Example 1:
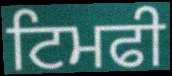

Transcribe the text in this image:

ਟਿਮਫੀ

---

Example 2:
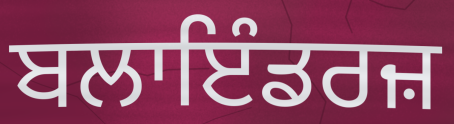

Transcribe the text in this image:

ਬਲਾਇੰਡਰਜ਼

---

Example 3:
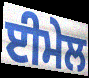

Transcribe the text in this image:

ਈਮੇਲ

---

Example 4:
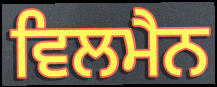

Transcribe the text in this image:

ਵਿਲਮੈਨ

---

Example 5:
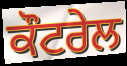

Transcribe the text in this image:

ਕੌਟਰੇਲ